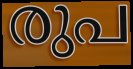
രുപ